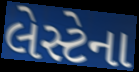
લેસ્ટેના